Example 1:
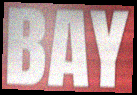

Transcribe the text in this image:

BAY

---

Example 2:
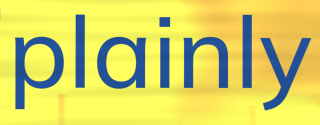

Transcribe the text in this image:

plainly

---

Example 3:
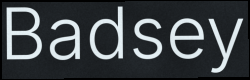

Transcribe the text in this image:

Badsey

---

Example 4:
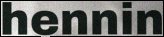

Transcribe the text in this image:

hennin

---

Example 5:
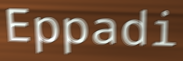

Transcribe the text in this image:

Eppadi